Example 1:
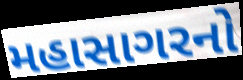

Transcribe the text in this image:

મહાસાગરનો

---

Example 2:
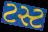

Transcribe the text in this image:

ટસ્ટ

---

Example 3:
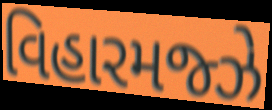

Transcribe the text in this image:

વિહારમજ્ઝે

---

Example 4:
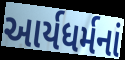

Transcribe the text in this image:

આર્યધર્મનાં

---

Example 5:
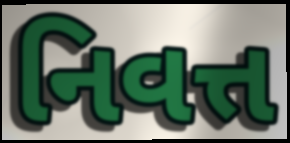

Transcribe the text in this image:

નિવત્ત